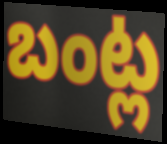
బంట్ల